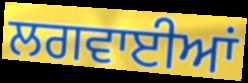
ਲਗਵਾਈਆਂ